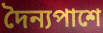
দৈন্যপাশে